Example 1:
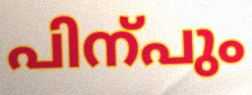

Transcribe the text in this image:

പിന്പും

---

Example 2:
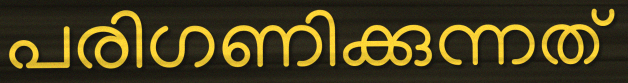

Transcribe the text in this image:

പരിഗണിക്കുന്നത്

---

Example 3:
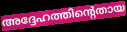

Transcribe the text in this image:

അദ്ദേഹത്തിന്റെതായ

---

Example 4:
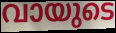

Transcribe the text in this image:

വായുടെ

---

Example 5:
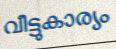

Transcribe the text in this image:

വീട്ടുകാര്യം